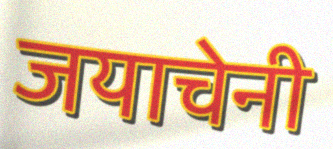
जयाचेनी